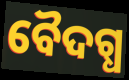
ବୈଦଗ୍ଧ